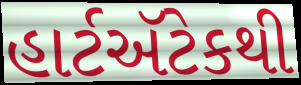
હાર્ટઍટેકથી